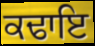
ਕਢਾਇ